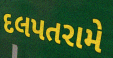
દલપતરામે